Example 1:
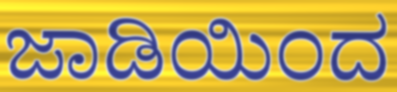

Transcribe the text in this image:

ಜಾಡಿಯಿಂದ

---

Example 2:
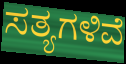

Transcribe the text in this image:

ಸತ್ಯಗಳಿವೆ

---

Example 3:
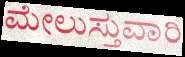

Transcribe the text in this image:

ಮೇಲುಸ್ತುವಾರಿ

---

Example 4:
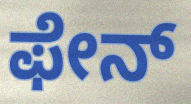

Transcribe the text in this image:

ಫೇನ್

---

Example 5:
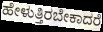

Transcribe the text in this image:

ಹೇಳುತ್ತಿರಬೇಕಾದರೆ